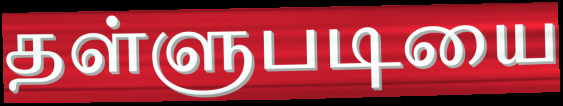
தள்ளுபடியை